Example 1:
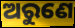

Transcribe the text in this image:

ଅରୁଣେ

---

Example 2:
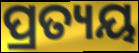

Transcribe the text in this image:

ପ୍ରତ୍ୟୟ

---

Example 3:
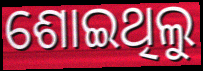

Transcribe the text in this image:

ଶୋଇଥିଲୁ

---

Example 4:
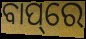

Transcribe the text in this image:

ବାପ୍‌ରେ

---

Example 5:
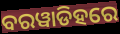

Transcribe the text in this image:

ବରୱାଡିହରେ